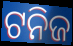
ଟନିଜ